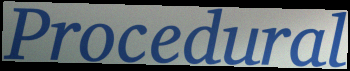
Procedural